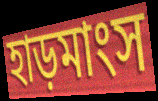
হাড়মাংস